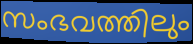
സംഭവത്തിലും